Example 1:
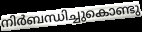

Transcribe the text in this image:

നിർബന്ധിച്ചുകൊണ്ടു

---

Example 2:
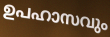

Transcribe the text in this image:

ഉപഹാസവും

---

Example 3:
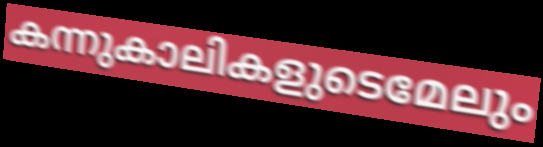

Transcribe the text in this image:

കന്നുകാലികളുടെമേലും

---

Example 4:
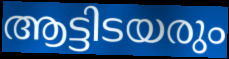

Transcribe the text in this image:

ആട്ടിടയരും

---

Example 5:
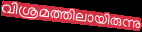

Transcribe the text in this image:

വിശ്രമത്തിലായിരുന്നു